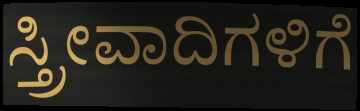
ಸ್ತ್ರೀವಾದಿಗಳಿಗೆ